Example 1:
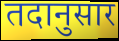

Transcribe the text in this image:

तदानुसार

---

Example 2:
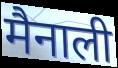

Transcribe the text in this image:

मैनाली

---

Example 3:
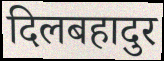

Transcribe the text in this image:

दिलबहादुर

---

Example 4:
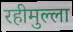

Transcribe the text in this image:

रहीमुल्ला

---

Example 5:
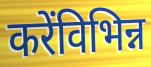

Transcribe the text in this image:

करेंविभिन्न